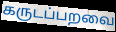
கருடப்பறவை